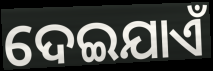
ଦେଇଯାଏଁ